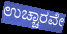
ಉಚ್ಚಾರವೇ